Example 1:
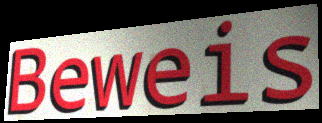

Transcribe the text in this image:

Beweis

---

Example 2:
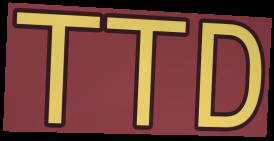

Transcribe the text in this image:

TTD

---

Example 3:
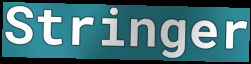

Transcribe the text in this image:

Stringer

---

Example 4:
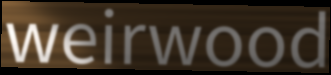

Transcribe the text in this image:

weirwood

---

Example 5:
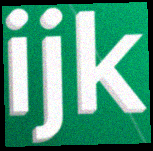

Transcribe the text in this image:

ijk